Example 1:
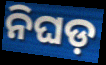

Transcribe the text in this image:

ନିଘଡ଼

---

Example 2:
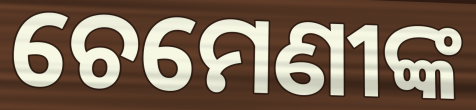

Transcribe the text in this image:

ଚେମେଣୀଙ୍କ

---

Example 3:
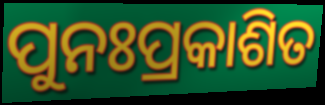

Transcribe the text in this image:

ପୁନଃପ୍ରକାଶିତ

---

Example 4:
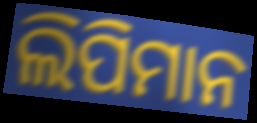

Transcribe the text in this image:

ଲିପିମାନ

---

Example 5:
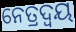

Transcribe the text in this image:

ନେତ୍ରଦ୍ୱୟ